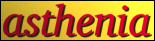
asthenia